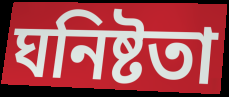
ঘনিষ্টতা